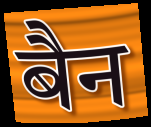
बैन